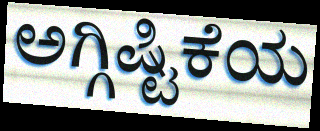
ಅಗ್ಗಿಷ್ಟಿಕೆಯ